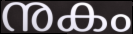
നുകം